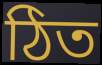
ঠিত